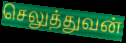
செலுத்துவன்